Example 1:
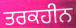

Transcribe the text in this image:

ਤਰਕਹੀਨ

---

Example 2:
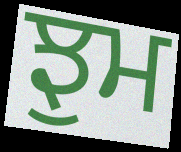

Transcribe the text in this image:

ਝੁਮ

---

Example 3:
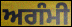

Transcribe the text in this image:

ਅਗੰਮੀ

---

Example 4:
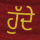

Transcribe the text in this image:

ਹੁੱਦੇ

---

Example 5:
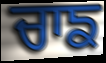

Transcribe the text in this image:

ਚਾਙ